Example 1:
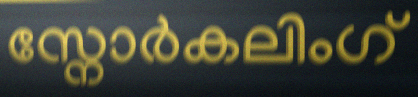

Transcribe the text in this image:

സ്നോർകലിംഗ്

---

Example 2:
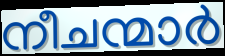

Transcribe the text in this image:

നീചന്മാർ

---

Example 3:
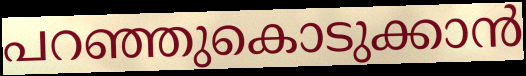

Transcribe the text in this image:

പറഞ്ഞുകൊടുക്കാൻ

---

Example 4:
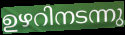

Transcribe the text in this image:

ഉഴറിനടന്നു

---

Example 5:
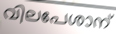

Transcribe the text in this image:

വിലപേശാന്